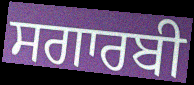
ਸਗਾਰਬੀ